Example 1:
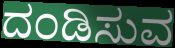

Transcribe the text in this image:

ದಂಡಿಸುವ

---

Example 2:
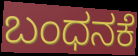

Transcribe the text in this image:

ಬಂಧನಕೆ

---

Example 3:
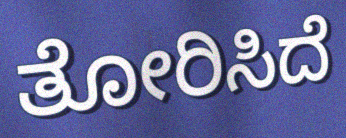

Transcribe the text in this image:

ತೋರಿಸಿದೆ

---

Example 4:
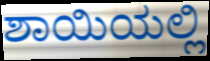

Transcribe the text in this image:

ಶಾಯಿಯಲ್ಲಿ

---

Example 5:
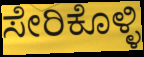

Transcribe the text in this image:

ಸೇರಿಕೊಳ್ಳಿ